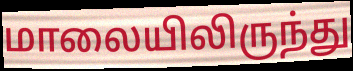
மாலையிலிருந்து